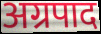
अग्रपाद